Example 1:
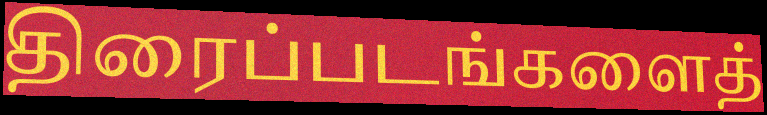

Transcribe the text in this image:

திரைப்படங்களைத்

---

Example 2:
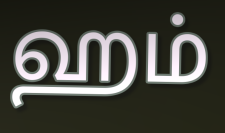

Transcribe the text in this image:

ஹம்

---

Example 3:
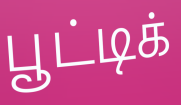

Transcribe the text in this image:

பூட்டிக்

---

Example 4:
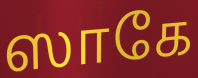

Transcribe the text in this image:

ஸாகே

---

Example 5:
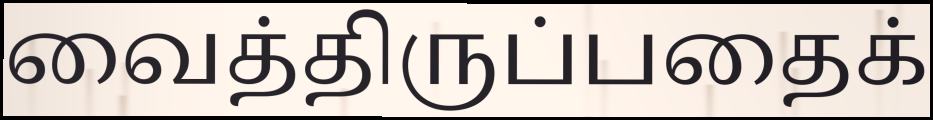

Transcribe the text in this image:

வைத்திருப்பதைக்